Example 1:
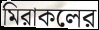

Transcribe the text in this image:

মিরাকলের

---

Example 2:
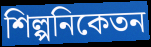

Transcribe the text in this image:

শিল্পনিকেতন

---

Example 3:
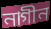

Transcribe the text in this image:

নাগীন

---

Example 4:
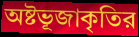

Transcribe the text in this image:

অষ্টভূজাকৃতির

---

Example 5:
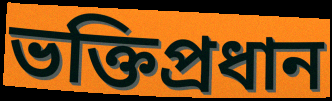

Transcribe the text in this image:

ভক্তিপ্রধান